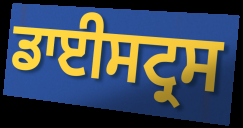
ਡਾਈਸਟ੍ਰਸ